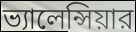
ভ্যালেন্সিয়ার